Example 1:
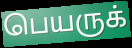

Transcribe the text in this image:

பெயருக்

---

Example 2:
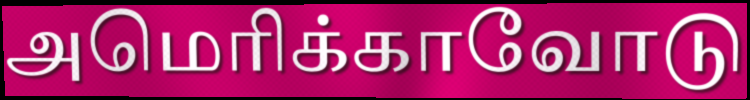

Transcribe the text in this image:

அமெரிக்காவோடு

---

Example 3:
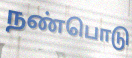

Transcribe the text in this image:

நண்பொடு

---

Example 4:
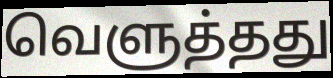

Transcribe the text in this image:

வெளுத்தது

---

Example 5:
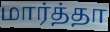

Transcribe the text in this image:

மார்த்தா